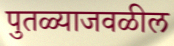
पुतळ्याजवळील